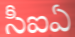
సీఐఏ